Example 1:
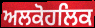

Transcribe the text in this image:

ਅਲਕੋਹਲਿਕ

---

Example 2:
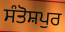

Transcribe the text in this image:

ਸੰਤੋਸ਼ਪੁਰ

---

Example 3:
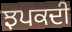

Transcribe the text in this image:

ਝਪਕਦੀ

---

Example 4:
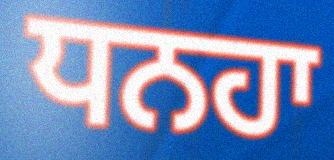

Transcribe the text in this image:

ਧਨਹਾ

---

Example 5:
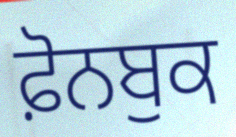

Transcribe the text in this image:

ਫ਼ੋਨਬੁਕ